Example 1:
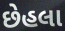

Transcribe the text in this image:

છેહલા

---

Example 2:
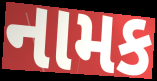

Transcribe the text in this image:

નામક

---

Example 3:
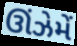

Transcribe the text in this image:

ઊંઝેમેં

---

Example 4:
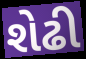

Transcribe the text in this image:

શેઢી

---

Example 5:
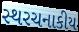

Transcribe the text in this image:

સ્થરચનાકીય